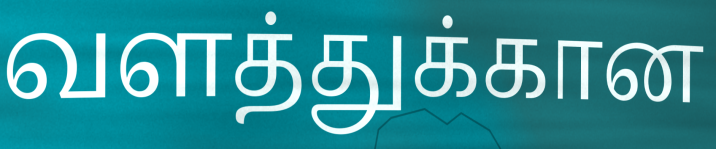
வளத்துக்கான